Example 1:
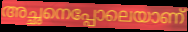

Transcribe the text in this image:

അച്ഛനെപ്പോലെയാണ്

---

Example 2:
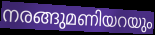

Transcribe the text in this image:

നരങ്ങുമണിയറയും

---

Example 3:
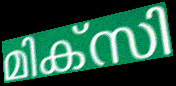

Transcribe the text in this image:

മിക്‌സി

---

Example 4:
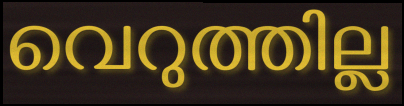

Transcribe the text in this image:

വെറുത്തില്ല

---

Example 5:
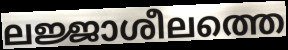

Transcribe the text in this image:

ലജ്ജാശീലത്തെ